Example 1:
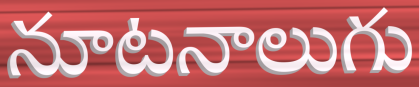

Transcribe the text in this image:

నూటనాలుగు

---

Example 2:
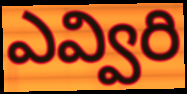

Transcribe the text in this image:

ఎవ్విరి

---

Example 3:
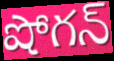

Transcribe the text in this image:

షోగన్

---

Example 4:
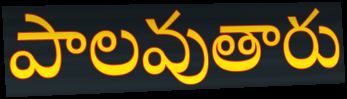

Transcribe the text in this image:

పాలవుతారు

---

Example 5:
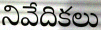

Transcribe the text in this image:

నివేదికలు